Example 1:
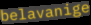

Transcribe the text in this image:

belavanige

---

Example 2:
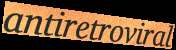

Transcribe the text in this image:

antiretroviral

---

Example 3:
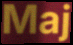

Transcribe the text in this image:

Maj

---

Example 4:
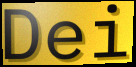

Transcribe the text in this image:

Dei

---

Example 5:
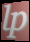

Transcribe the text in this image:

lp